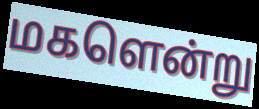
மகளென்று